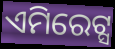
ଏମିରେଟ୍ସ